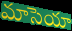
మాసెయా